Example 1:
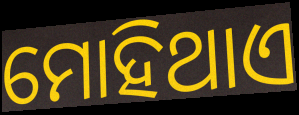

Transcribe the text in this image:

ମୋହିଥାଏ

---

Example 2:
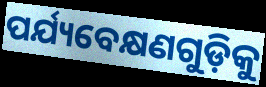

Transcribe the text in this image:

ପର୍ଯ୍ୟବେକ୍ଷଣଗୁଡ଼ିକୁ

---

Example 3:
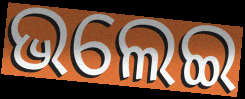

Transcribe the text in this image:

ଭଲେଇ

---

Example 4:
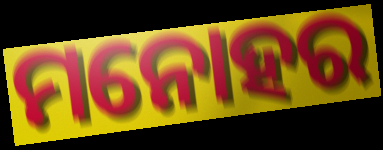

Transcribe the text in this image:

ମନୋହର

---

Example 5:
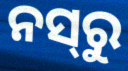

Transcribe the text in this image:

ନସ୍‍ରୁ